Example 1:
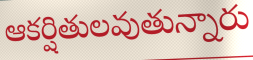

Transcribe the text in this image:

ఆకర్షితులవుతున్నారు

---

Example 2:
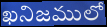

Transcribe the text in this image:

ఖనిజములో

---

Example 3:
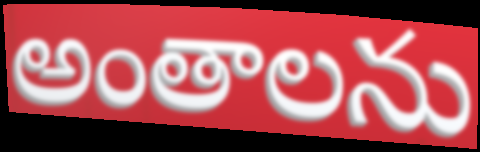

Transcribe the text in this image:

అంతాలను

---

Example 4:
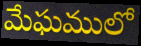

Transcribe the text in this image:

మేఘములో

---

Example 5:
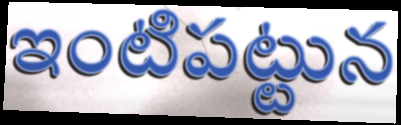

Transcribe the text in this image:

ఇంటిపట్టున